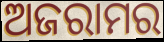
ଅଜରାମର